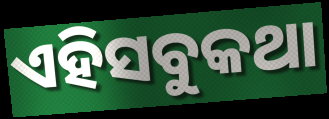
ଏହିସବୁକଥା